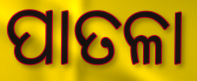
ପାତଳା